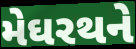
મેઘરથને